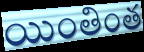
యింతింత